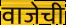
वाजेची